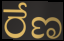
రేణ